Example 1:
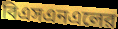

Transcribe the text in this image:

বিএসএনএলের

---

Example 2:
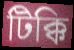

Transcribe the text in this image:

টিক্কি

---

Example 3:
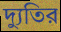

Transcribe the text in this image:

দ্যুতির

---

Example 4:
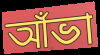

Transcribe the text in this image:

আঁভা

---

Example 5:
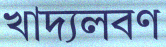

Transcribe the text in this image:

খাদ্যলবণ